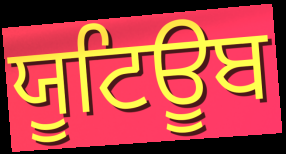
ਯੂਟਿਊਬ